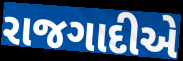
રાજગાદીએ